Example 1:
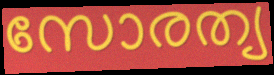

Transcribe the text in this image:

സോരത്യ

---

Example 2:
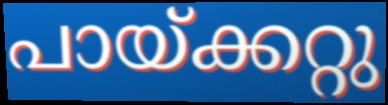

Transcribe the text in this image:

പായ്ക്കറ്റു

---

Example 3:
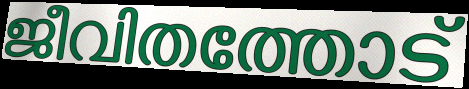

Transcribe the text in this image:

ജീവിതത്തോട്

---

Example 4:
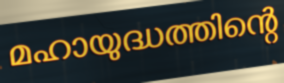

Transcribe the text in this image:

മഹായുദ്ധത്തിന്റെ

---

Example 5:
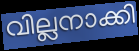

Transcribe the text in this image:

വില്ലനാക്കി